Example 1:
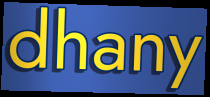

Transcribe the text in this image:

dhany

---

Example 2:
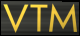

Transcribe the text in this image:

VTM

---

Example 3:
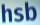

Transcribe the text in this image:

hsb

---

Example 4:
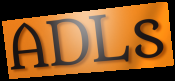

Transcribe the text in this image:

ADLs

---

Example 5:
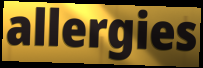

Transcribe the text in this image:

allergies